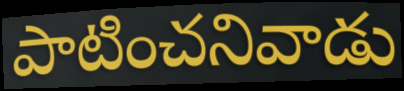
పాటించనివాడు